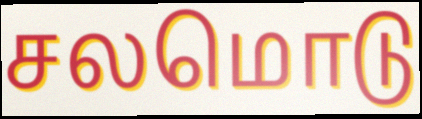
சலமொடு